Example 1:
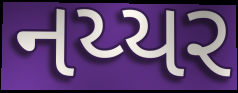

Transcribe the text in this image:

નય્યર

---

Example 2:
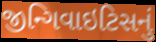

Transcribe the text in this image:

જીન્ગિવાઇટિસનું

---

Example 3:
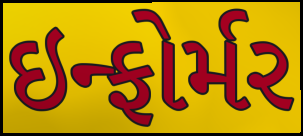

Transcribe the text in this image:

ઇન્ફોર્મર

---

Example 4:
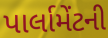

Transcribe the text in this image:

પાર્લામેંટની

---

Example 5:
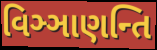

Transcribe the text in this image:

વિઞ્ઞાણન્તિ